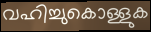
വഹിച്ചുകൊള്ളുക